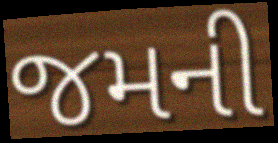
જમની